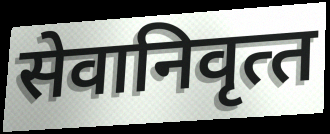
सेवानिवृत्‍त